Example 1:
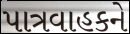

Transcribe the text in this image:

પાત્રવાહકને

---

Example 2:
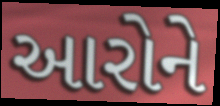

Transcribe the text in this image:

આરોને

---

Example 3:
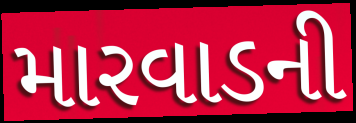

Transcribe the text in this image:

મારવાડની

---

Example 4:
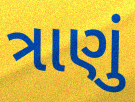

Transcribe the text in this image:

ત્રાણું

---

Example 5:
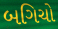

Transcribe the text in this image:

બગિચો